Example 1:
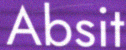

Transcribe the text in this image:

Absit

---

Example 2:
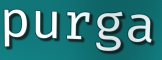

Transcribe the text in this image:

purga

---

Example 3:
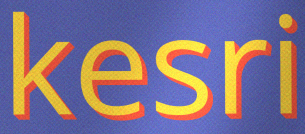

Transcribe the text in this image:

kesri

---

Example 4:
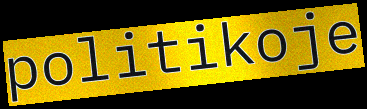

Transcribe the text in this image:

politikoje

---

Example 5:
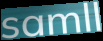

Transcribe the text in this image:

samll